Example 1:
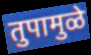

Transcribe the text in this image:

तुपामुळे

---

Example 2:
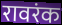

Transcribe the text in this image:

रावरंक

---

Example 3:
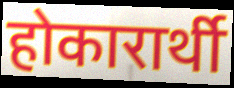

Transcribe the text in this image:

होकारार्थी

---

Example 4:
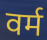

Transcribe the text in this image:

वर्म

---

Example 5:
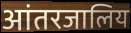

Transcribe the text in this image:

आंतरजालिय